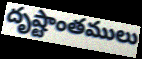
దృష్టాంతములు